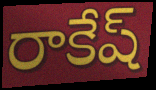
రాకేష్